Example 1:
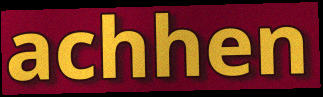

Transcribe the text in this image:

achhen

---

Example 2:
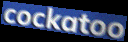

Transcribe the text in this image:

cockatoo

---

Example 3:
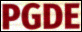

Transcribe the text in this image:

PGDE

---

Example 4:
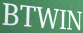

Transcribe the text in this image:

BTWIN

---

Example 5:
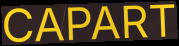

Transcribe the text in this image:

CAPART